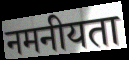
नमनीयता